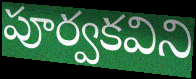
పూర్వకవిని